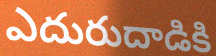
ఎదురుదాడికి